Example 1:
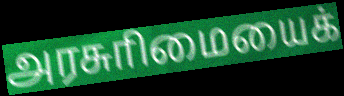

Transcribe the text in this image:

அரசுரிமையைக்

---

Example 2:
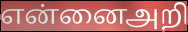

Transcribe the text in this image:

என்னைஅறி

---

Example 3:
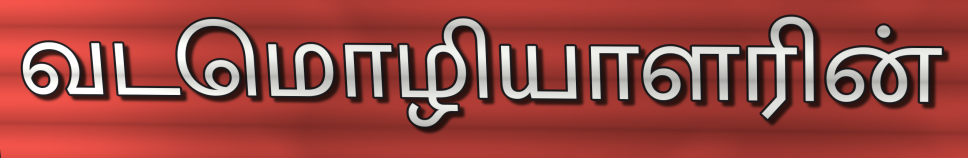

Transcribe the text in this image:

வடமொழியாளரின்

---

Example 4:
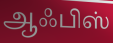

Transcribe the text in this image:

ஆஃபிஸ்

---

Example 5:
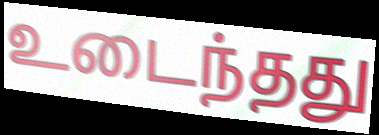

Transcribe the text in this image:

உடைந்தது